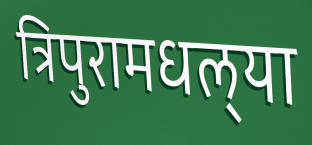
त्रिपुरामधल्या